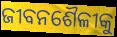
ଜୀବନଶୈଳୀକୁ